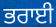
ਭਰਾਈ